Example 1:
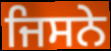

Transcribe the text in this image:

ਜਿਸਨੇ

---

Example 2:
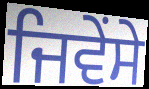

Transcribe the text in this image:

ਜਿਵੇਂਸੇ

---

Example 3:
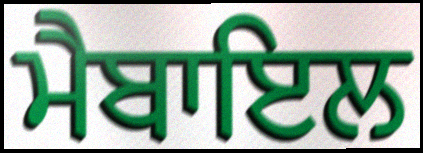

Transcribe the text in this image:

ਮੈਬਾਇਲ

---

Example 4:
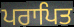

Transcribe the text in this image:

ਪਰਾਪਿਤ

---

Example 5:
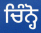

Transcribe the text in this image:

ਚਿੰਨ੍ਹੋ